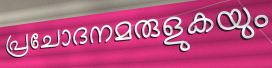
പ്രചോദനമരുളുകയും